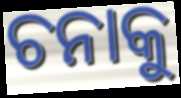
ଚନାକୁ